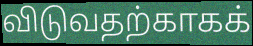
விடுவதற்காகக்